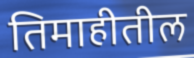
तिमाहीतील